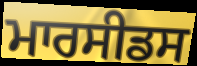
ਮਾਰਸੀਡਸ